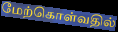
மேற்கொள்வதில்